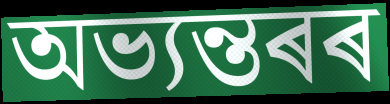
অভ্যন্তৰৰ